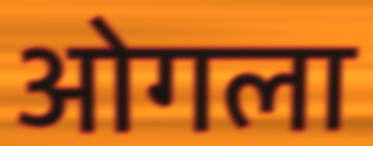
ओगला